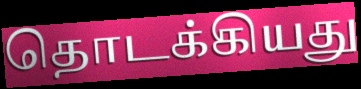
தொடக்கியது